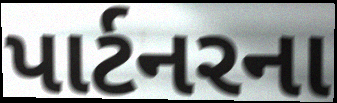
પાર્ટનરના